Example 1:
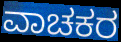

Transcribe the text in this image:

ವಾಚಕರ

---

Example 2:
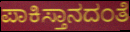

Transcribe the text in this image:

ಪಾಕಿಸ್ತಾನದಂತೆ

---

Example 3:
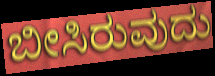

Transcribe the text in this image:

ಬೀಸಿರುವುದು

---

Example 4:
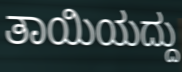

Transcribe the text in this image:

ತಾಯಿಯದ್ದು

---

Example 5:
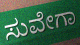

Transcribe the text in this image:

ಸುವೇಗಾ